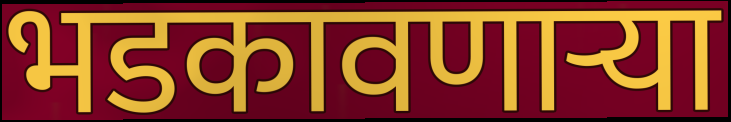
भडकावणाऱ्या